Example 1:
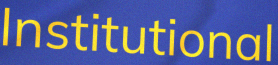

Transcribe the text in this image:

Institutional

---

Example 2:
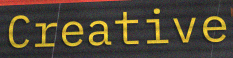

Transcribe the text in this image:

Creative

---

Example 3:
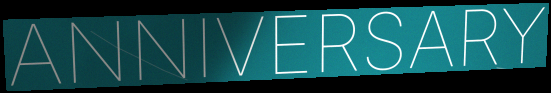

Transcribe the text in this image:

ANNIVERSARY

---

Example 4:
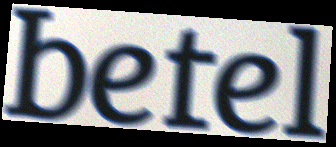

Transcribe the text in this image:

betel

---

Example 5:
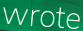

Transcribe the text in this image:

wrote